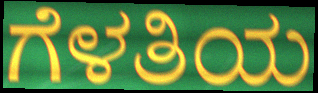
ಗೆಳತಿಯ